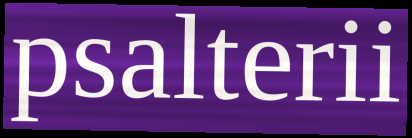
psalterii